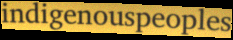
indigenouspeoples